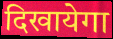
दिखायेगा